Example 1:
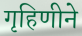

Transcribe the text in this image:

गृहिणीने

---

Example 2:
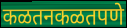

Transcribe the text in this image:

कळतनकळतपणे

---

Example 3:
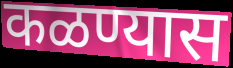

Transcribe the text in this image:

कळण्यास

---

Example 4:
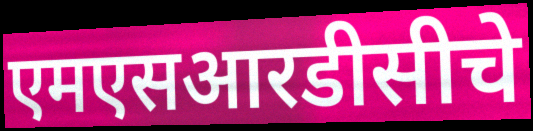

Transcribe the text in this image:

एमएसआरडीसीचे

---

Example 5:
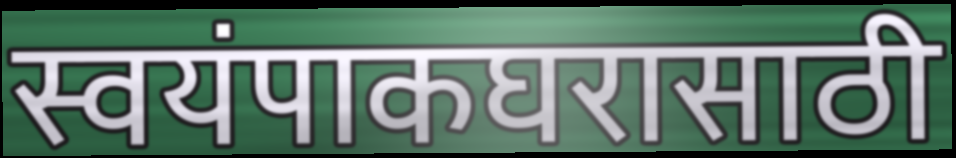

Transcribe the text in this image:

स्वयंपाकघरासाठी